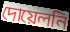
দোয়েলনি